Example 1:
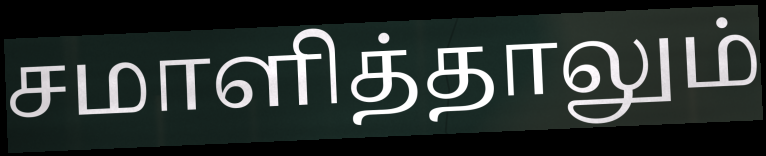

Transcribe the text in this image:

சமாளித்தாலும்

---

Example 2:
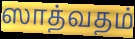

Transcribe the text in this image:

ஸாத்வதம்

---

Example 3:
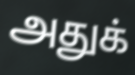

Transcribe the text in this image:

அதுக்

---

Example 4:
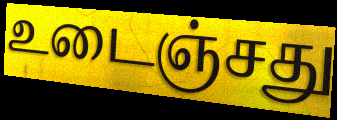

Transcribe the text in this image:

உடைஞ்சது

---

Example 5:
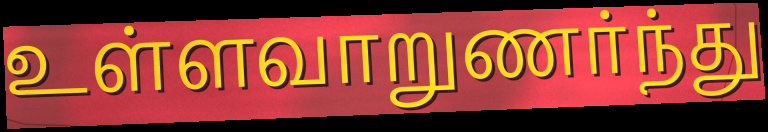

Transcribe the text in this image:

உள்ளவாறுணர்ந்து